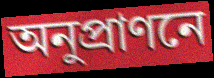
অনুপ্রাণনে